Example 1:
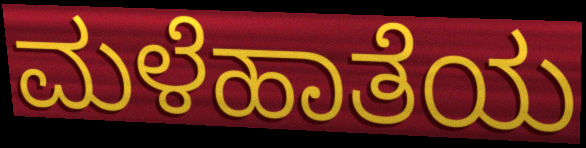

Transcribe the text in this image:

ಮಳೆಹಾತೆಯ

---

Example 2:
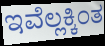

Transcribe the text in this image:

ಇವೆಲ್ಲಕ್ಕಿಂತ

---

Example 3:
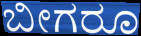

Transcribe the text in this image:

ಬೀಗರೂ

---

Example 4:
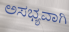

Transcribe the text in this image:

ಅಸಭ್ಯವಾಗಿ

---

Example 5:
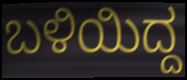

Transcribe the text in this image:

ಬಳಿಯಿದ್ದ